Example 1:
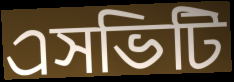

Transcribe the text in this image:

এসভিটি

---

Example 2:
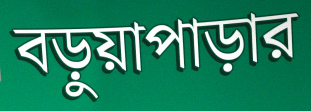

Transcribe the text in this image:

বড়ুয়াপাড়ার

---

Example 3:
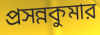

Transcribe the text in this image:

প্রসন্নকুমার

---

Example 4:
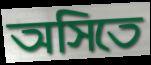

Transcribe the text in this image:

অসিতে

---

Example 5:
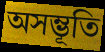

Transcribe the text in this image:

অসম্ভূতি